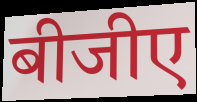
बीजीए